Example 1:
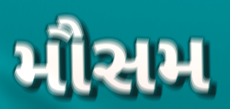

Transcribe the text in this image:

મૌસમ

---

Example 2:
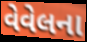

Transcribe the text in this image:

વેવેલના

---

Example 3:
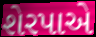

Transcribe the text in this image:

શેરપાએ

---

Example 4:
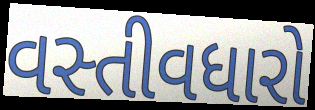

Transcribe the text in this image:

વસ્તીવધારો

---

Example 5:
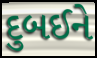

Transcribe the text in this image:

દુબઈને